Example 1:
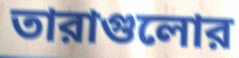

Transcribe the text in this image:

তারাগুলোর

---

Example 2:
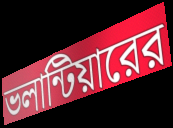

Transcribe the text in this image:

ভলান্টিয়ারের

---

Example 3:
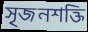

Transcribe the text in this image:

সৃজনশক্তি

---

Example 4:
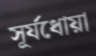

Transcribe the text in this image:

সূর্যধোয়া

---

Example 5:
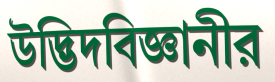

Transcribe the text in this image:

উদ্ভিদবিজ্ঞানীর